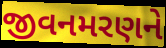
જીવનમરણને